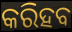
କରିହବ